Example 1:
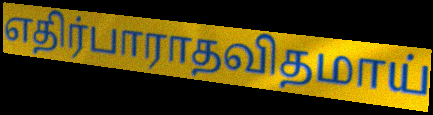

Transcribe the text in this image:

எதிர்பாராதவிதமாய்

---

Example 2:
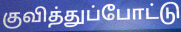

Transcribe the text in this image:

குவித்துப்போட்டு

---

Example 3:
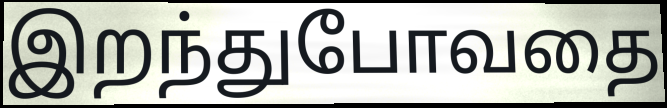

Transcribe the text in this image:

இறந்துபோவதை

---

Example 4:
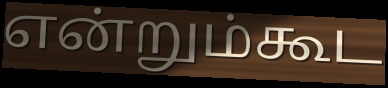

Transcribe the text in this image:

என்றும்கூட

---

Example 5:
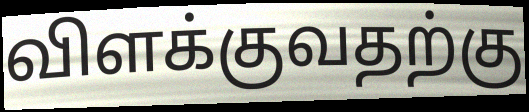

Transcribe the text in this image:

விளக்குவதற்கு